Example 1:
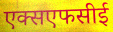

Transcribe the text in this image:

एक्सएफसीई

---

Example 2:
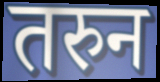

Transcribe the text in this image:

तरुन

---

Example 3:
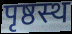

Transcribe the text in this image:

पृष्ठस्थ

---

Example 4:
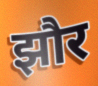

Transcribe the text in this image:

झौर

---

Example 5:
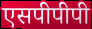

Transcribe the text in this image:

एसपीपीपी